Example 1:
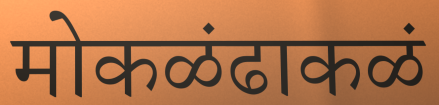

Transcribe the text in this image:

मोकळंढाकळं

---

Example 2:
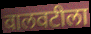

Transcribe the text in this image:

वालवटीला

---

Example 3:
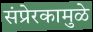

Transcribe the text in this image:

संप्रेरकामुळे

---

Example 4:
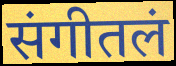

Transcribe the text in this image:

संगीतलं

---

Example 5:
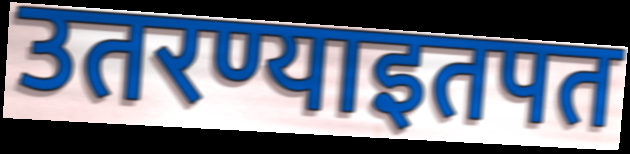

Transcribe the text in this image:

उतरण्याइतपत